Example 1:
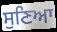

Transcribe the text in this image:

ਸੁਣਿਆ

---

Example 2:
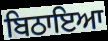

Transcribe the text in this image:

ਬਿਠਾਇਆ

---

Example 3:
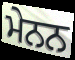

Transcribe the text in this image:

ਮੇਨਨ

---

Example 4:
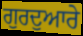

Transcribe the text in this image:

ਗੁਰਦੁਆਰੇ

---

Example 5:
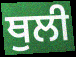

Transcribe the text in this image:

ਥੁਲੀ